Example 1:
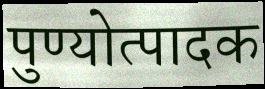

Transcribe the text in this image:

पुण्योत्पादक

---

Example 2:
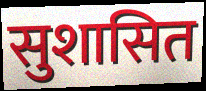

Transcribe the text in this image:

सुशासित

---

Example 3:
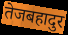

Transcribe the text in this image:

तेजबहादुर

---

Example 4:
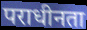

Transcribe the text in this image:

पराधीनता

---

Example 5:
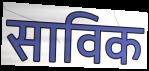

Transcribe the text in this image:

साविक